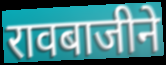
रावबाजीने